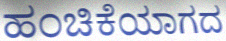
ಹಂಚಿಕೆಯಾಗದ